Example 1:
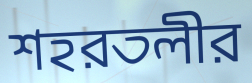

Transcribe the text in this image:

শহরতলীর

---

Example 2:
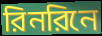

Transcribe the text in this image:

রিনরিনে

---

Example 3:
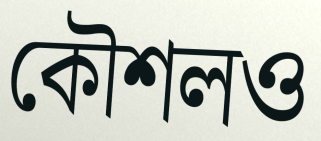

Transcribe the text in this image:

কৌশলও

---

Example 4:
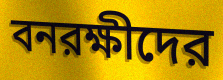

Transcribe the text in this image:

বনরক্ষীদের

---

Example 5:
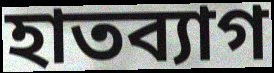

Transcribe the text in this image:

হাতব্যাগ